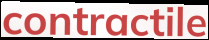
contractile